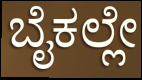
ಬೈಕಲ್ಲೇ